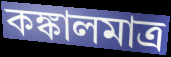
কঙ্কালমাত্র